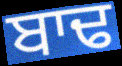
ਬਾਢ